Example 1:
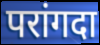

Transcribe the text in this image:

परांगदा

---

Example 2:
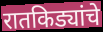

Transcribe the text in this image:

रातकिड्यांचे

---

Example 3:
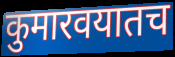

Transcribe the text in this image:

कुमारवयातच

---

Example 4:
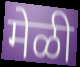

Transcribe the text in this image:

मेळी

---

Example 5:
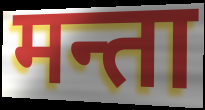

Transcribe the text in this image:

मन्ता